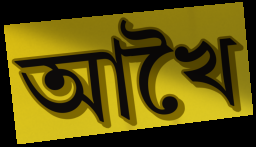
আখৈ